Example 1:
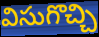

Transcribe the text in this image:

విసుగొచ్చి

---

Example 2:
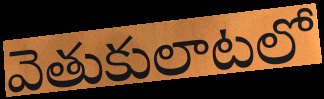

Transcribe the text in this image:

వెతుకులాటలో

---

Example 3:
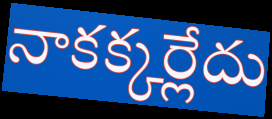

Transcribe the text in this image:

నాకక్కర్లేదు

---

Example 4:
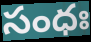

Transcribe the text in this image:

సంధః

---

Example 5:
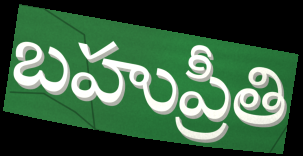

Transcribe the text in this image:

బహుప్రీతి